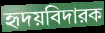
হৃদয়বিদারক